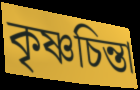
কৃষ্ণচিন্তা